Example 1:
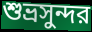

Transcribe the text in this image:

শুভ্রসুন্দর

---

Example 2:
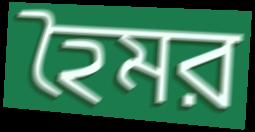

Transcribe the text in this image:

হৈমর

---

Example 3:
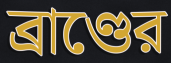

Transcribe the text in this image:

ব্রাণ্ডের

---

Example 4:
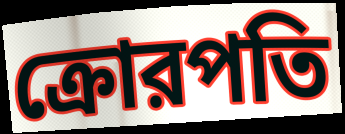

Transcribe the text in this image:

ক্রোরপতি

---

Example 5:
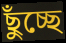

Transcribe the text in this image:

ছুঁচ্ছে